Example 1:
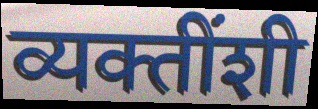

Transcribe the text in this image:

व्यक्तींशी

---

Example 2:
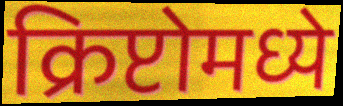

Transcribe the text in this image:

क्रिप्टोमध्ये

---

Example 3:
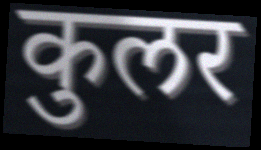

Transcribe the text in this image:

कुलर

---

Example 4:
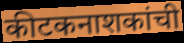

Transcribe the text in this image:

कीटकनाशकांची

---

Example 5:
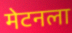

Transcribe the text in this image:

मेटनला